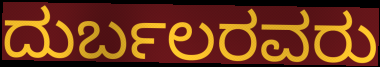
ದುರ್ಬಲರವರು